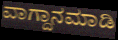
ವಾಗ್ದಾನಮಾಡಿ